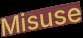
Misuse